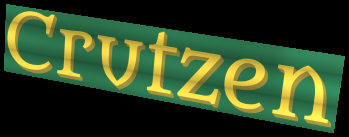
Crutzen